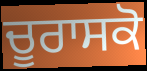
ਚੂਰਾਸਕੋ